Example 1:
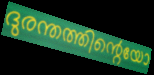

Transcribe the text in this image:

ദുരന്തത്തിന്റെയോ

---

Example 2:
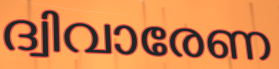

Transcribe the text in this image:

ദ്വിവാരേണ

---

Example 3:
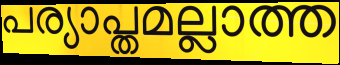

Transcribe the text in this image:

പര്യാപ്തമല്ലാത്ത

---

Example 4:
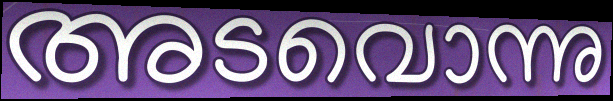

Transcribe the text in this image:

അടവൊന്നു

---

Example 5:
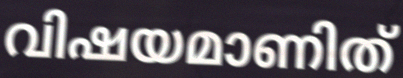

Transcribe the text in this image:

വിഷയമാണിത്